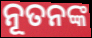
ନୂତନଙ୍କ